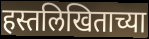
हस्तलिखिताच्या